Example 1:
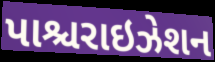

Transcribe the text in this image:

પાશ્ચરાઇઝેશન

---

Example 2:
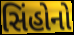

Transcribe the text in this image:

સિંહોનો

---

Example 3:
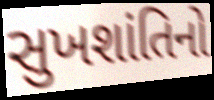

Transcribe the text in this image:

સુખશાંતિનો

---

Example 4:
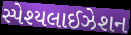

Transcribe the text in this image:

સ્પેશ્યલાઈઝેશન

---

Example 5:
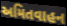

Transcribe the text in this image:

અમિતવાહન